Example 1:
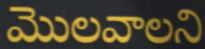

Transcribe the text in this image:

మొలవాలని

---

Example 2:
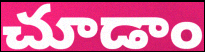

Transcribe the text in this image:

చూడాం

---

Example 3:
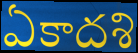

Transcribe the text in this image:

ఏకాదశి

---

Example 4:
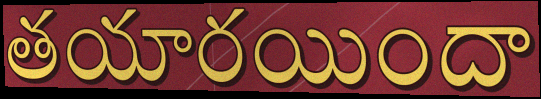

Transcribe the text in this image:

తయారయిందా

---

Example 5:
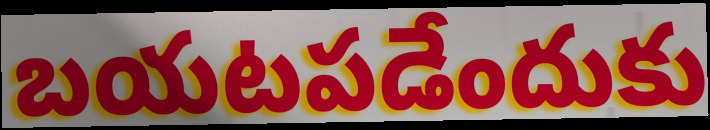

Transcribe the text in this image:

బయటపడేందుకు